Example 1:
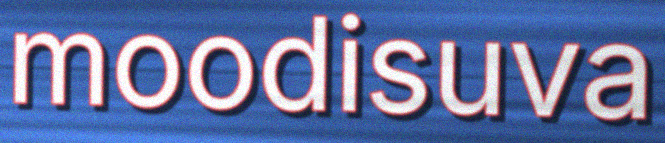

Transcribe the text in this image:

moodisuva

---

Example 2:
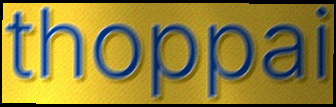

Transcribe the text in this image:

thoppai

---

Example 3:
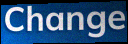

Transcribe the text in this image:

Change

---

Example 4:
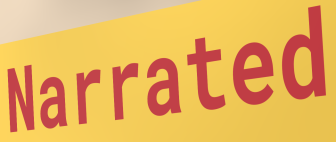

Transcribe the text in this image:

Narrated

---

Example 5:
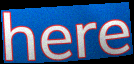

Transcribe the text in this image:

here